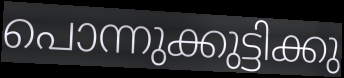
പൊന്നുക്കുട്ടിക്കു